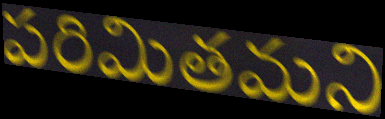
పరిమితమని